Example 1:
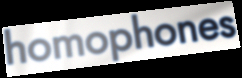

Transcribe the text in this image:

homophones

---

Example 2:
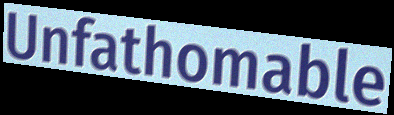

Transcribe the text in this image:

Unfathomable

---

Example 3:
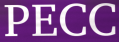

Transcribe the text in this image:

PECC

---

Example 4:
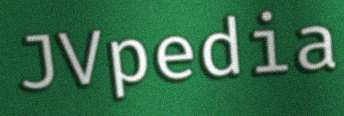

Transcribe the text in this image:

JVpedia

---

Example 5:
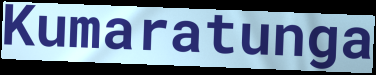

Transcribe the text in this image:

Kumaratunga